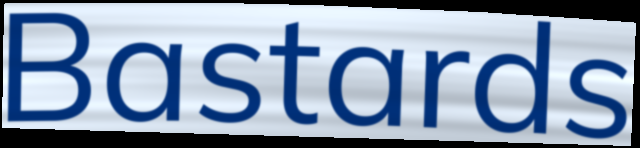
Bastards